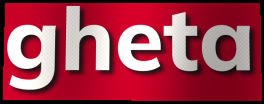
gheta